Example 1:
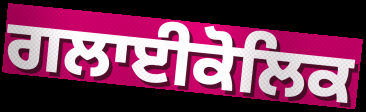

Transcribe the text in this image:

ਗਲਾਈਕੋਲਿਕ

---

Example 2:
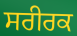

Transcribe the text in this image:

ਸਰੀਰਕ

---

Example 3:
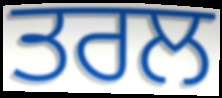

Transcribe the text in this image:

ਤਰਲ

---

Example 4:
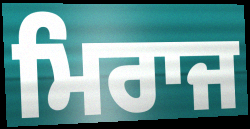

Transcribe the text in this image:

ਮਿਰਾਜ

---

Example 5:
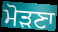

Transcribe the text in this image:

ਮੋੜਣਾ